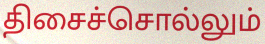
திசைச்சொல்லும்